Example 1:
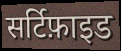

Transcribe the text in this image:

सर्टिफ़ाइड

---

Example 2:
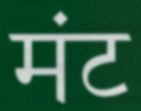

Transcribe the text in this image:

मंट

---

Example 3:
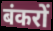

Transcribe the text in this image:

बंकरों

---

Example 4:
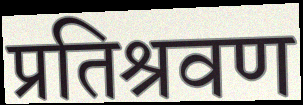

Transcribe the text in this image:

प्रतिश्रवण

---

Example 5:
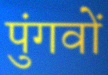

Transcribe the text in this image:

पुंगवों